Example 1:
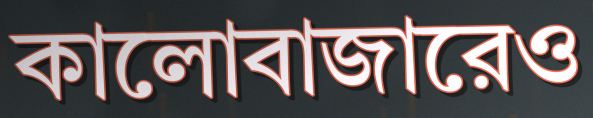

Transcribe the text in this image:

কালোবাজারেও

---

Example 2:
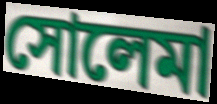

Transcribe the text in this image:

সোলেমা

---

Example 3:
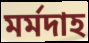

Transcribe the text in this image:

মর্মদাহ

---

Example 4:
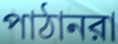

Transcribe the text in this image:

পাঠানরা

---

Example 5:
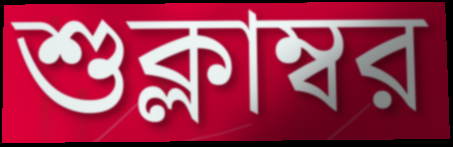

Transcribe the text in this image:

শুক্লাম্বর